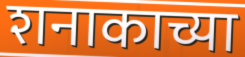
शनाकाच्या